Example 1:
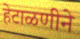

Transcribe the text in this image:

हेटाळणीने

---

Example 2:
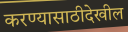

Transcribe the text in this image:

करण्यासाठीदेखील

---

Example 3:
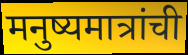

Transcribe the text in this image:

मनुष्यमात्रांची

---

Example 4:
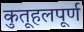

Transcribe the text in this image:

कुतूहलपूर्ण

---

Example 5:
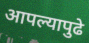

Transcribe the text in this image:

आपल्यापुढे